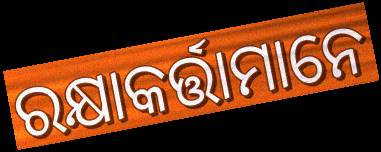
ରକ୍ଷାକର୍ତ୍ତାମାନେ